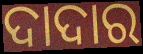
ଦାଦାର